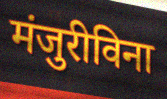
मंजुरीविना